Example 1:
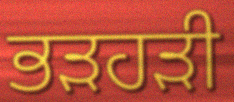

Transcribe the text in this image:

ਭੜਹੜੀ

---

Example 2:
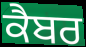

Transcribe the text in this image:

ਕੈਬਰ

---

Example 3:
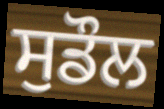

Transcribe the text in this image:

ਸੁਡੌਲ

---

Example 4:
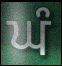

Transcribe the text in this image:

ਘੰ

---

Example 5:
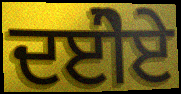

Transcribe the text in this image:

ਦਈੇਏ